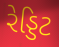
રેડ્ડિટ